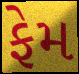
ફેમ